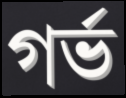
গর্ভ